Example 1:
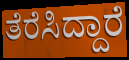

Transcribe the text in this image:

ತೆರೆಸಿದ್ದಾರೆ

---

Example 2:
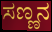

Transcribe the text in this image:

ಸಣ್ಣನ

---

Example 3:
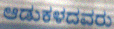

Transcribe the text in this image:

ಆಡುಕಳದವರು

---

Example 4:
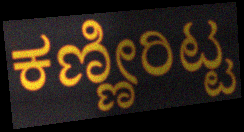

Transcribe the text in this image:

ಕಣ್ಣೀರಿಟ್ಟ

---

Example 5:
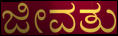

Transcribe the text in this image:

ಜೀವತು